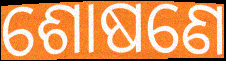
ଶୋଷଣେ